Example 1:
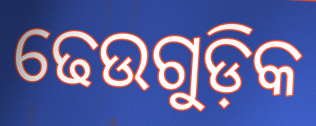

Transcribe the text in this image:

ଢେଉଗୁଡ଼ିକ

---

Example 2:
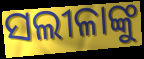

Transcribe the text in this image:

ସଲୀଳାଙ୍କୁ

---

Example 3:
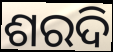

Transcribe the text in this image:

ଶରଦି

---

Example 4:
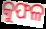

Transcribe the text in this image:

କୁଫଳ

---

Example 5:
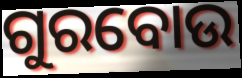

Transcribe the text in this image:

ଗୁରବୋଉ